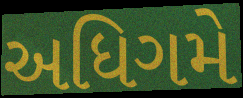
અધિગમે